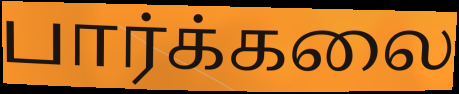
பார்க்கலை